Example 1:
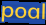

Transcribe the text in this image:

poal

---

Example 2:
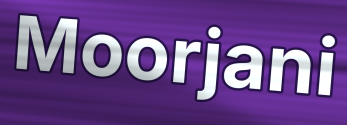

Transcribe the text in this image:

Moorjani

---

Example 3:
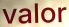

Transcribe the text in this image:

valor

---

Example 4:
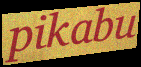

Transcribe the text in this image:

pikabu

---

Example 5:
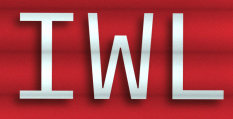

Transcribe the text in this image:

IWL